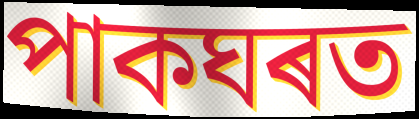
পাকঘৰত